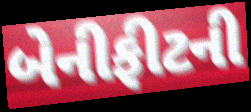
બેનીફીટની